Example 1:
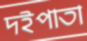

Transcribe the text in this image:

দইপাতা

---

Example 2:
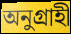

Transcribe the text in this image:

অনুগ্রাহী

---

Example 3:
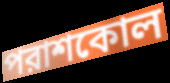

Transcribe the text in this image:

পরাশকোল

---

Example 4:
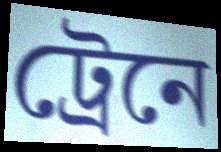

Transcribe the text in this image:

ট্রেনে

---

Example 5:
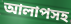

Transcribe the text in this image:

আলাপসহ